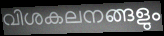
വിശകലനങ്ങളും